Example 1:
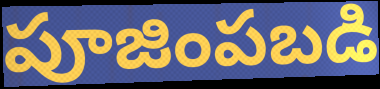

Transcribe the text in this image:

పూజింపబడి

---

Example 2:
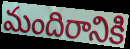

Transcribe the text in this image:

మందిరానికి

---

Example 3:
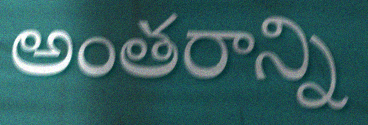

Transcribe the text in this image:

అంతరాన్ని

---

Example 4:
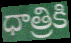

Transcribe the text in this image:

ధాత్రికి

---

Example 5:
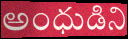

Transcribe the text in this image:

అంధుడిని